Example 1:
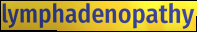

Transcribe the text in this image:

lymphadenopathy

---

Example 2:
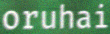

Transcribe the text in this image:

oruhai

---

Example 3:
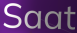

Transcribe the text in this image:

Saat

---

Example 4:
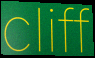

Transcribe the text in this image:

cliff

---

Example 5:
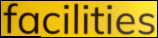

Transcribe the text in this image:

facilities